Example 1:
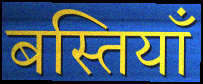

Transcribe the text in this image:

बस्तियाँ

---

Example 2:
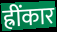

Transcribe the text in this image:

ह्रींकार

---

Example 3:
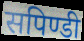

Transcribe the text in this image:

सपिण्डी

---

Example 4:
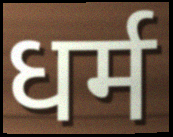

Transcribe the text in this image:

धर्म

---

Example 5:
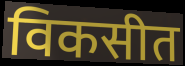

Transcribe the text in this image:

विकसीत